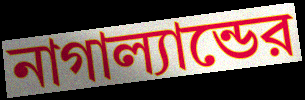
নাগাল্যান্ডের